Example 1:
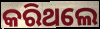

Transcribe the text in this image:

କରିଥଲେ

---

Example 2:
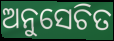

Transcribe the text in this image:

ଅନୁସେଚିତ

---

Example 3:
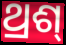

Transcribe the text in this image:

ଥ୍ରଶ୍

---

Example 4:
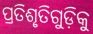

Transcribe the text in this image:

ପ୍ରତିଶୃତିଗୁଡ଼ିକୁ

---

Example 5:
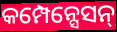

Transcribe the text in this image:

କମ୍ପେନ୍ସେସନ୍